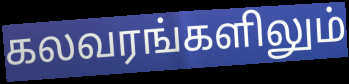
கலவரங்களிலும்